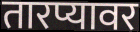
तारप्यावर